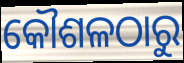
କୌଶଳଠାରୁ